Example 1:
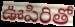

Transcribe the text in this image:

ఊపిరితో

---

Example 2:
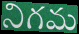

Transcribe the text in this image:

నిగమ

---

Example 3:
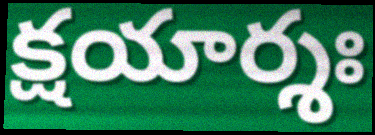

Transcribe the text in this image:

క్షయార్శః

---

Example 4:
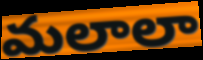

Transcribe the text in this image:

మలాలా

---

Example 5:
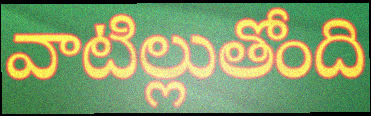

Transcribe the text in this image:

వాటిల్లుతోంది